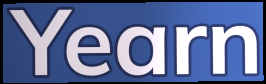
Yearn